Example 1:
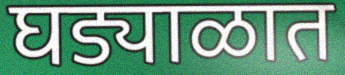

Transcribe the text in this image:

घड्याळात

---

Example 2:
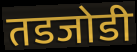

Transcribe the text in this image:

तडजोडी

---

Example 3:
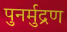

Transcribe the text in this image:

पुनर्मुद्रण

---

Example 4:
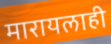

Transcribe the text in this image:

मारायलाही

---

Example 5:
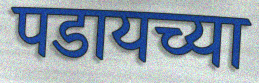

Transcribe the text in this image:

पडायच्या